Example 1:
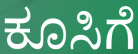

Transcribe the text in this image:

ಕೂಸಿಗೆ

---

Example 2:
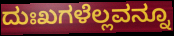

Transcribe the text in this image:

ದುಃಖಗಳೆಲ್ಲವನ್ನೂ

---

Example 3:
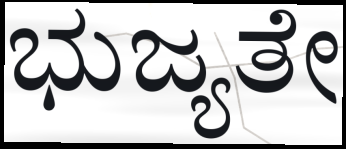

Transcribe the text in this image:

ಭುಜ್ಯತೇ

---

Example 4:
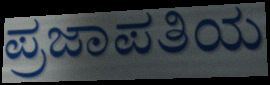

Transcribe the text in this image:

ಪ್ರಜಾಪತಿಯ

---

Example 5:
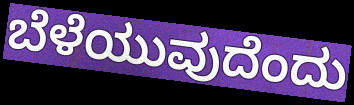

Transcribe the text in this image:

ಬೆಳೆಯುವುದೆಂದು